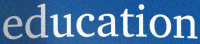
education